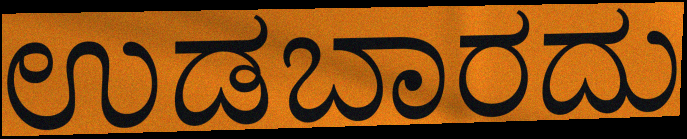
ಉಡಬಾರದು